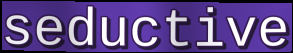
seductive